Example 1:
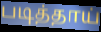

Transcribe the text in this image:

படித்தாய்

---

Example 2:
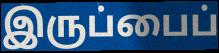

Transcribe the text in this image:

இருப்பைப்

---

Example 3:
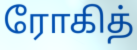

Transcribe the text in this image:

ரோகித்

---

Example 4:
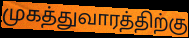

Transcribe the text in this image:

முகத்துவாரத்திற்கு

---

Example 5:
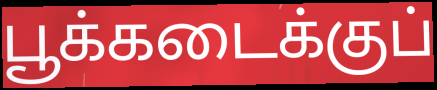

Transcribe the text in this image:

பூக்கடைக்குப்